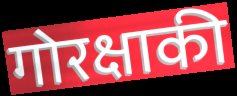
गोरक्षाकी